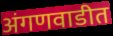
अंगणवाडीत